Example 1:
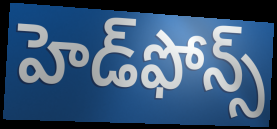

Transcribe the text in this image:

హెడ్‌ఫోన్స్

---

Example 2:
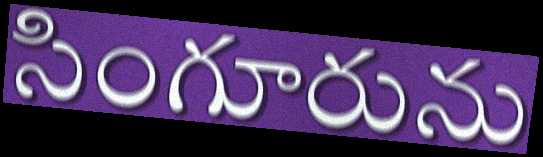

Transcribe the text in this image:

సింగూరును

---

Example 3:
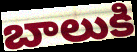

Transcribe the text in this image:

బాలుకి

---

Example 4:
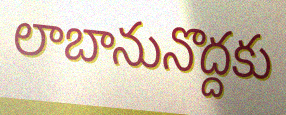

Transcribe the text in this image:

లాబానునొద్దకు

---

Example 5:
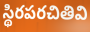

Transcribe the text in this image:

స్థిరపరచితివి